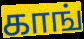
காங்